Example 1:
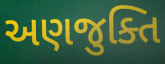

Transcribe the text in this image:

અણજુક્તિ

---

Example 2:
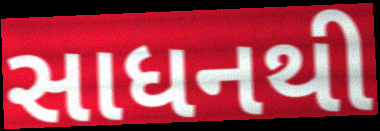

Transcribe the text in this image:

સાધનથી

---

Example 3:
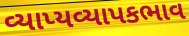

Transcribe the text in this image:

વ્યાપ્યવ્યાપકભાવ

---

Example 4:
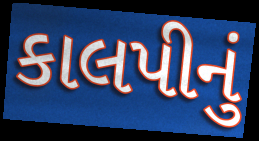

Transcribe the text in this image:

કાલપીનું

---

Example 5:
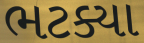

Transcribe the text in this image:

ભટક્યા